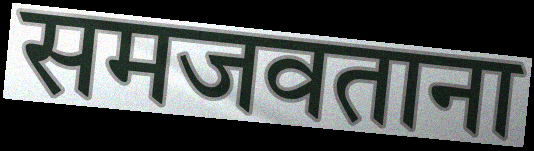
समजवताना